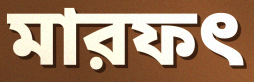
মারফৎ